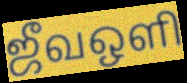
ஜீவஒளி